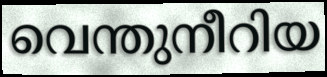
വെന്തുനീറിയ